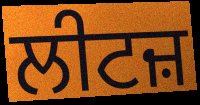
ਲੀਟਜ਼